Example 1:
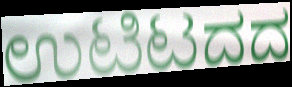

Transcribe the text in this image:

ಉಟಿಟದದ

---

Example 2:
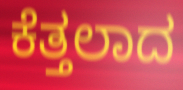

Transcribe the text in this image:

ಕೆತ್ತಲಾದ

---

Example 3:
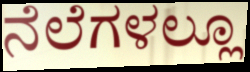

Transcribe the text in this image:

ನೆಲೆಗಳಲ್ಲೂ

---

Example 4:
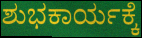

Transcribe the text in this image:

ಶುಭಕಾರ್ಯಕ್ಕೆ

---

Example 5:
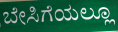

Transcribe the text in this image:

ಬೇಸಿಗೆಯಲ್ಲೂ